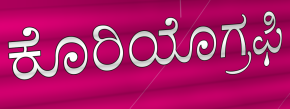
ಕೊರಿಯೊಗ್ರಫಿ